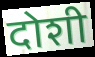
दोशी